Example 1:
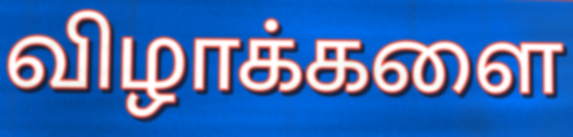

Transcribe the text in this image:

விழாக்களை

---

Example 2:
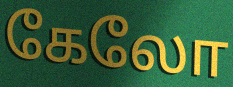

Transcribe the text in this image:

கேலோ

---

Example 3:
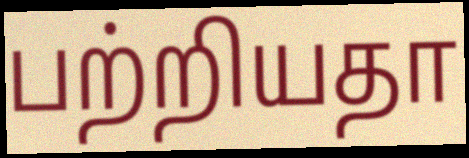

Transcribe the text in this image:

பற்றியதா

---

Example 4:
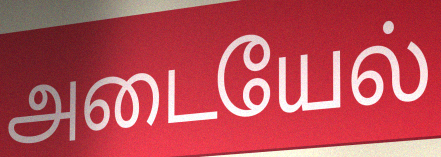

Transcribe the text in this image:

அடையேல்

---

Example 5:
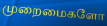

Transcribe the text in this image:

முறைமைகளோ